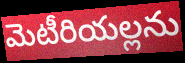
మెటీరియల్లను